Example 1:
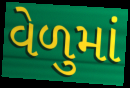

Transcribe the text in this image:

વેળુમાં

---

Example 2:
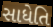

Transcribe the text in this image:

સાધેતિ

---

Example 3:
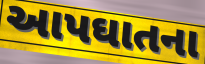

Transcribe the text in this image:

આપઘાતના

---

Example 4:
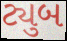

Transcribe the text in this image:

ટ્યુબ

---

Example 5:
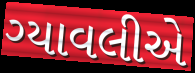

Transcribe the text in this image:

ગ્યાવલીએ